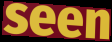
seen